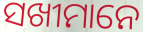
ସଖୀମାନେ